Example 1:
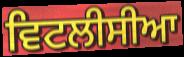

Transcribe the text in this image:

ਵਿਟਲੀਸੀਆ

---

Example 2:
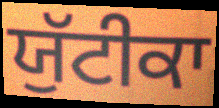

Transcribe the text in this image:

ਯੁੱਟੀਕਾ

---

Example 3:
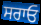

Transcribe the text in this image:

ਸਰਾਓ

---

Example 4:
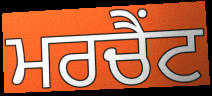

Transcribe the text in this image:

ਮਰਚੈਂਟ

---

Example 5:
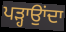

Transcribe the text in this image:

ਪੜ੍ਹਾਉਾਂਦਾ